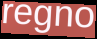
regno